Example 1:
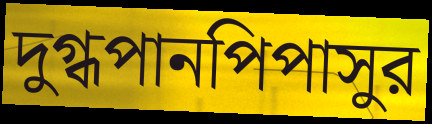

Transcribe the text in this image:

দুগ্ধপানপিপাসুর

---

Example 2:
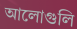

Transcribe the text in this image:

আলোগুলি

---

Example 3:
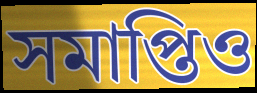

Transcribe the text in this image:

সমাপ্তিও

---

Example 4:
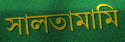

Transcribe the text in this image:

সালতামামি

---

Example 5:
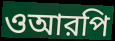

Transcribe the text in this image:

ওআরপি